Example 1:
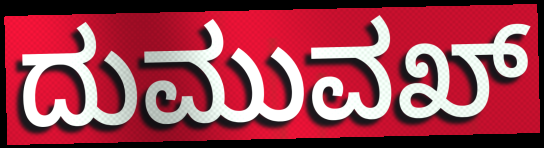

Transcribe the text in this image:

ದುಮುವಖ್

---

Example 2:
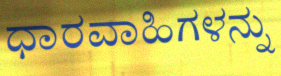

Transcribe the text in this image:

ಧಾರವಾಹಿಗಳನ್ನು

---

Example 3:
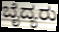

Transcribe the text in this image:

ಬೈದ್ಯರು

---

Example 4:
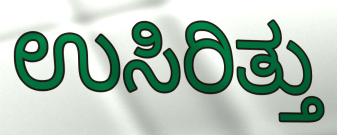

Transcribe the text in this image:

ಉಸಿರಿತ್ತು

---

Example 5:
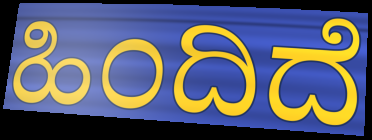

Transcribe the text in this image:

ಹಿಂದಿದೆ